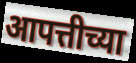
आपत्तीच्या